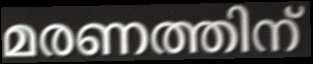
മരണത്തിന്